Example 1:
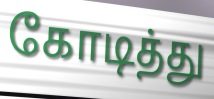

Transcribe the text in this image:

கோடித்து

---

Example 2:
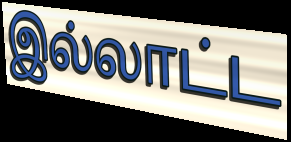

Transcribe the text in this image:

இல்லாட்ட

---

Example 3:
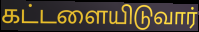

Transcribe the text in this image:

கட்டளையிடுவார்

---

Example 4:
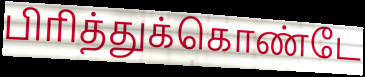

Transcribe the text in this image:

பிரித்துக்கொண்டே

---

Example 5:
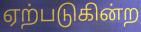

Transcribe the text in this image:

ஏற்படுகின்ற